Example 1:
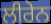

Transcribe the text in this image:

ਲੀਰੇਨ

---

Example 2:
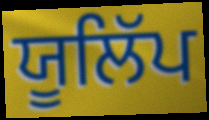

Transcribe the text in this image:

ਯੂਲਿੱਪ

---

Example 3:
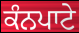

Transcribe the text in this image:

ਕੰਨਪਾਟੇ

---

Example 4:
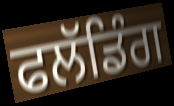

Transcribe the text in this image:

ਫਲੱਡਿੰਗ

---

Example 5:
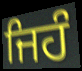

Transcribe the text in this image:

ਜਿਹੰ